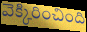
వెక్కిరించింది